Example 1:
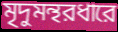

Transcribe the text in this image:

মৃদুমন্থরধারে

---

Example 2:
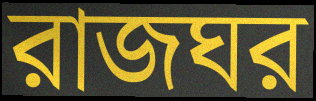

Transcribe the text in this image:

রাজঘর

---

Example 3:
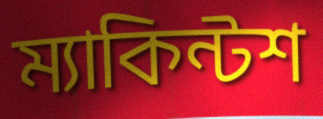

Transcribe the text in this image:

ম্যাকিন্টশ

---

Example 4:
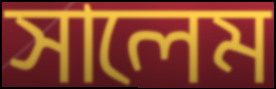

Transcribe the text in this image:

সালেম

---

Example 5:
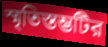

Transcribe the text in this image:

স্মৃতিস্তম্ভটির